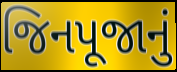
જિનપૂજાનું